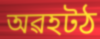
অৱহটঠ